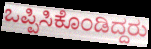
ಒಪ್ಪಿಸಿಕೊಂಡಿದ್ದರು